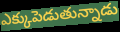
ఎక్కుపెడుతున్నాడు